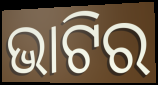
ଭାଟିର